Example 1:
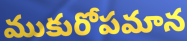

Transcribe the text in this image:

ముకురోపమాన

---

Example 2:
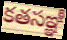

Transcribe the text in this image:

కతసఞ్ఞీ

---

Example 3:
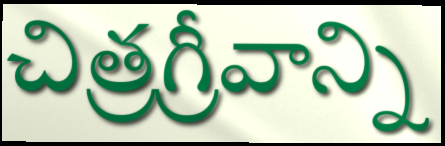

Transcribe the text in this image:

చిత్రగ్రీవాన్ని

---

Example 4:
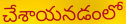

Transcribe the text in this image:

చేశాయనడంలో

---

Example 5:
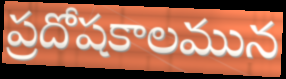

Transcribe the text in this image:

ప్రదోషకాలమున